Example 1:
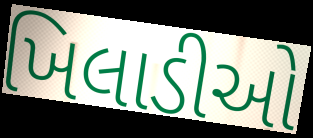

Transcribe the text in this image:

ખિલાડીઓ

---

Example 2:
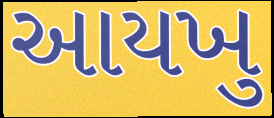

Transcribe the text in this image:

આયખુ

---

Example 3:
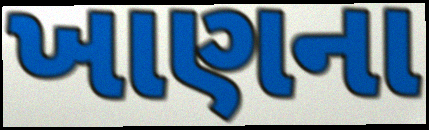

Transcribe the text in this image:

ખાણના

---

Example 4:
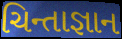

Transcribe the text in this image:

ચિન્તાજ્ઞાન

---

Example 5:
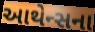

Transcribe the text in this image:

આથેન્સના